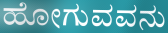
ಹೋಗುವವನು